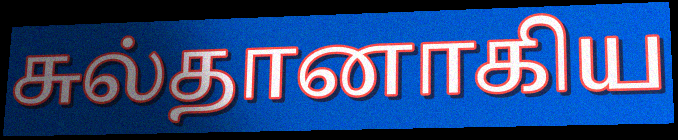
சுல்தானாகிய